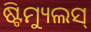
ଷ୍ଟିମ୍ୟୁଲସ୍